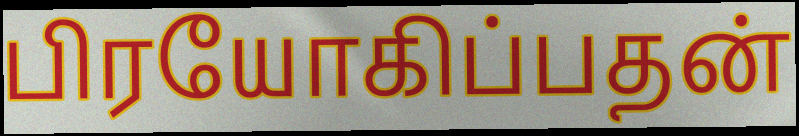
பிரயோகிப்பதன்